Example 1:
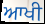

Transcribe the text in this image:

ਆਖੀ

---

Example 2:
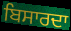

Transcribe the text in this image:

ਬਿਸਾਰਦਾ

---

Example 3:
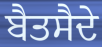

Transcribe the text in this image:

ਬੈਤਸੈਦੇ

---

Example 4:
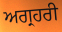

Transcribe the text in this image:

ਅਗ੍ਰਹਰੀ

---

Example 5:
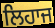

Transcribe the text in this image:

ਲਿਹਾਜ